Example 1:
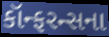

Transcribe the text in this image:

કૉન્ફરન્સના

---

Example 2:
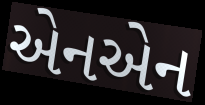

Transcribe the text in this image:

એનએન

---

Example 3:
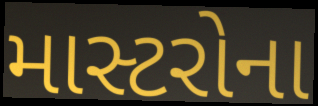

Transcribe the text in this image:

માસ્ટરોના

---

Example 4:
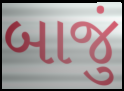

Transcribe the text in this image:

બાજું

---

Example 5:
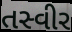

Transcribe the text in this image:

તસ્વીર